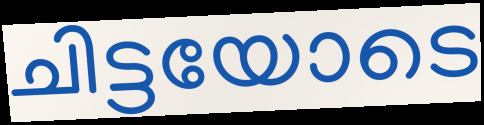
ചിട്ടയോടെ